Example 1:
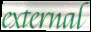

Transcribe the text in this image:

external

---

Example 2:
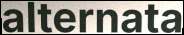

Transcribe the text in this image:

alternata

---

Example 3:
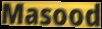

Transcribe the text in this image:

Masood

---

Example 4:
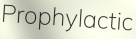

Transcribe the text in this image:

Prophylactic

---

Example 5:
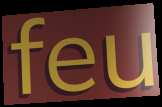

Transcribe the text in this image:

feu